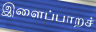
இளைப்பாறச்